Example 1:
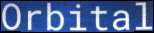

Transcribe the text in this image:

Orbital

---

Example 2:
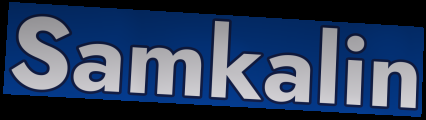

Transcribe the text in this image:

Samkalin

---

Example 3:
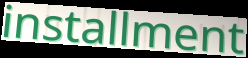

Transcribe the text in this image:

installment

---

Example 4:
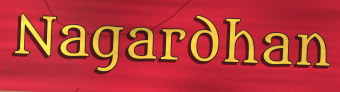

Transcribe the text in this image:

Nagardhan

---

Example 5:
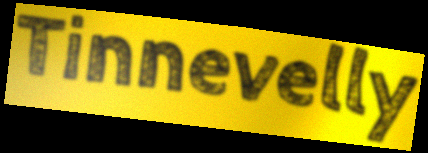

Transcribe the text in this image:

Tinnevelly